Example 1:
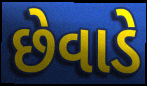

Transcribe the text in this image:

છેવાડે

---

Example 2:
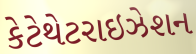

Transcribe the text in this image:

કેટેથેટરાઇઝેશન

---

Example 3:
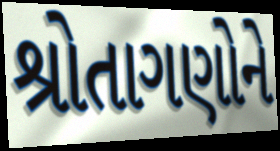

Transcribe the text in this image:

શ્રોતાગણોને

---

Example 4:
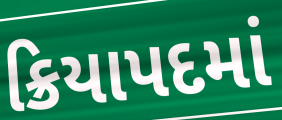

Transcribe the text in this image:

ક્રિયાપદમાં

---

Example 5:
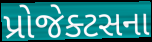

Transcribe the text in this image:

પ્રોજેક્ટસના